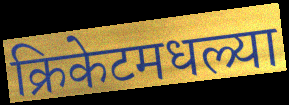
क्रिकेटमधल्या